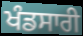
ਖੰਡਸਾਰੀ